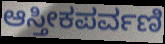
ಆಸ್ತೀಕಪರ್ವಣಿ